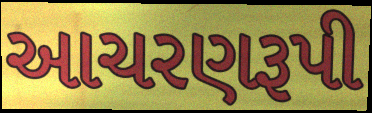
આચરણરૂપી